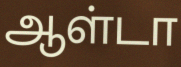
ஆள்டா